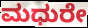
ಮಧುರೇ